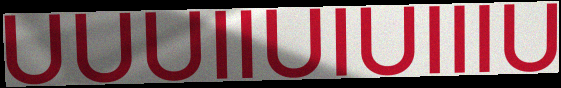
UUUIIUIUIIIU